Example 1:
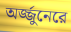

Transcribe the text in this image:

অর্জ্জুনেরে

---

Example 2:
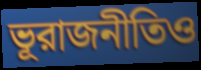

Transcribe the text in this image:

ভূরাজনীতিও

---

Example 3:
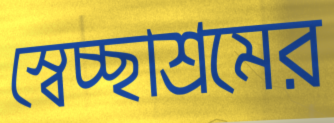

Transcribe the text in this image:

স্বেচ্ছাশ্রমের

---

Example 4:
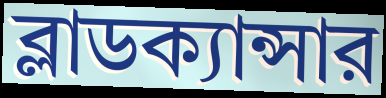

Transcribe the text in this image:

ব্লাডক্যান্সার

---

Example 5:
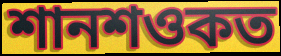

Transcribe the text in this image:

শানশওকত